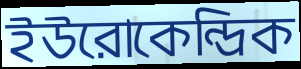
ইউরোকেন্দ্রিক